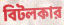
বিটলকার